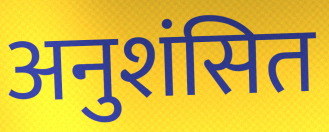
अनुशंसित